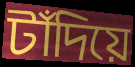
টাঁদিয়ে